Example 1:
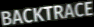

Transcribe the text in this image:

BACKTRACE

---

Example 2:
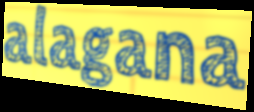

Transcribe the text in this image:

alagana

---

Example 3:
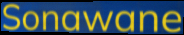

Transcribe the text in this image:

Sonawane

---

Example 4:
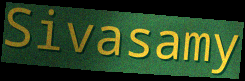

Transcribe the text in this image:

Sivasamy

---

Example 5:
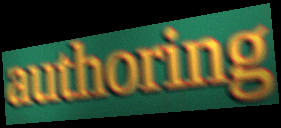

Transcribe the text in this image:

authoring